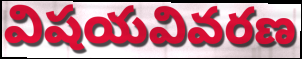
విషయవివరణ